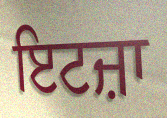
ਇਟਜ਼ਾ